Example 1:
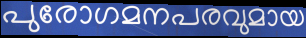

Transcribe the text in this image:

പുരോഗമനപരവുമായ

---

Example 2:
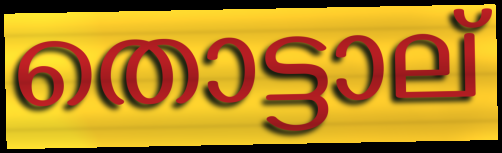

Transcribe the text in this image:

തൊട്ടാല്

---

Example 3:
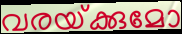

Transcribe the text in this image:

വരയ്‌ക്കുമോ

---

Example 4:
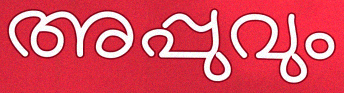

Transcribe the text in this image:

അപ്പുവും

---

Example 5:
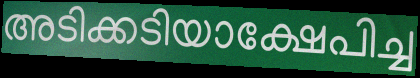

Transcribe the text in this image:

അടിക്കടിയാക്ഷേപിച്ച